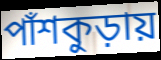
পাঁশকুড়ায়